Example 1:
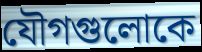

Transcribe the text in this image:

যৌগগুলোকে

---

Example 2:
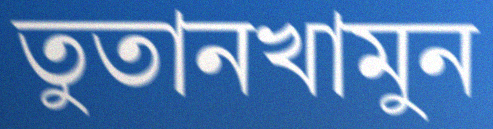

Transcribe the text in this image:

তুতানখামুন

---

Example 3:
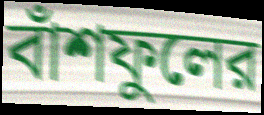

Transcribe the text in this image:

বাঁশফুলের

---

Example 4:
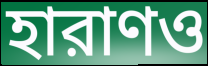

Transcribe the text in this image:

হারাণও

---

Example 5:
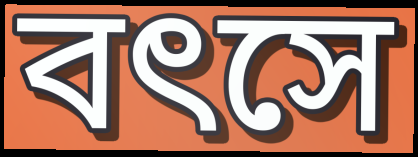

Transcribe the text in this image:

বৎসে